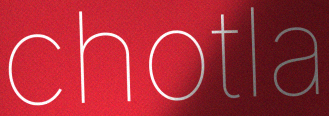
chotla